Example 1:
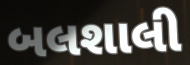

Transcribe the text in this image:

બલશાલી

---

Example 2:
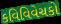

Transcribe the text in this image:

કવિવિવેચકો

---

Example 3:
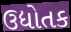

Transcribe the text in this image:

ઉદ્યોતક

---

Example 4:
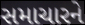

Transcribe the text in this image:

સમાચારને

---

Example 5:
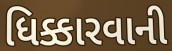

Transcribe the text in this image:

ધિક્કારવાની